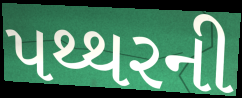
પથ્થરની